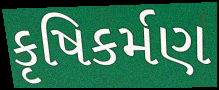
કૃષિકર્મણ